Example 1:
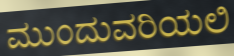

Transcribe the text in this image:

ಮುಂದುವರಿಯಲಿ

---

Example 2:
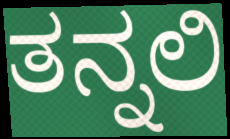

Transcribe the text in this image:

ತನ್ನಲಿ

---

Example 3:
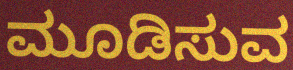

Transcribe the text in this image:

ಮೂಡಿಸುವ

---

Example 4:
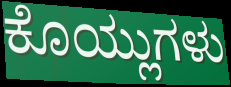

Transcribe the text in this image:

ಕೊಯ್ಲುಗಳು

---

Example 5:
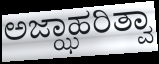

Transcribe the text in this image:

ಅಜ್ಝಾಹರಿತ್ವಾ